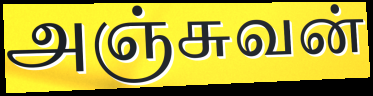
அஞ்சுவன்